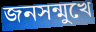
জনসন্মুখে